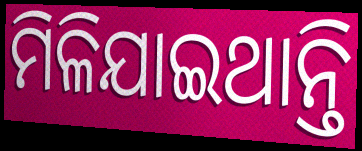
ମିଳିଯାଇଥାନ୍ତି